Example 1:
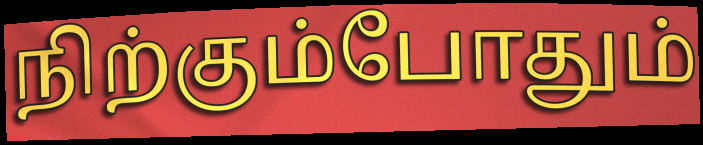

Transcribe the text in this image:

நிற்கும்போதும்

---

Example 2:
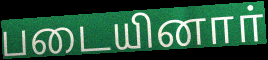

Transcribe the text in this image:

படையினார்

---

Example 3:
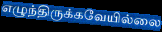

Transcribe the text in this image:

எழுந்திருக்கவேயில்லை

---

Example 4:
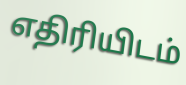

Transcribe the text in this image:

எதிரியிடம்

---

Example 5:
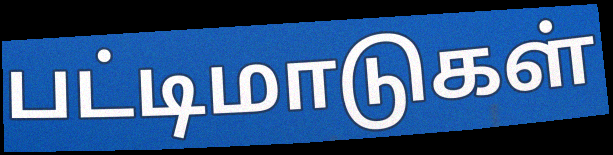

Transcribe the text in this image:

பட்டிமாடுகள்